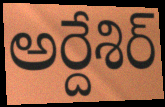
అర్దేశిర్